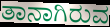
ತಾನಾಗಿರುವ